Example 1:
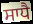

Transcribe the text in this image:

ਸਾਧੈ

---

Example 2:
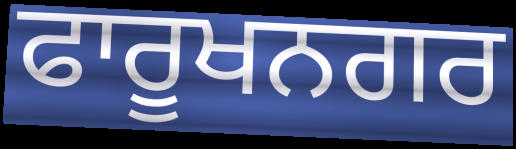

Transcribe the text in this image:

ਫਾਰੂਖਨਗਰ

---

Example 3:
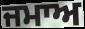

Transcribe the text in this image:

ਜਮਾਅ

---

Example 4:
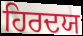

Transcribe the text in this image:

ਹਿਰਦਯ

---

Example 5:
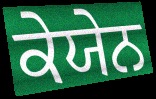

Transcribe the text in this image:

ਕੇਯੇਨ